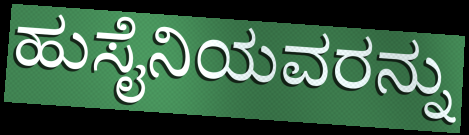
ಹುಸೈನಿಯವರನ್ನು